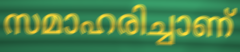
സമാഹരിച്ചാണ്